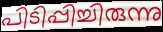
പിടിപ്പിച്ചിരുന്നു